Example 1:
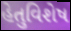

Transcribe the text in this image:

હેતુવિશેષ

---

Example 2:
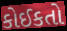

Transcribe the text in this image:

કોઈકતો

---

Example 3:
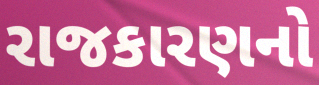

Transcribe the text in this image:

રાજકારણનો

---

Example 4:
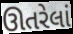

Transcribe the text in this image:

ઊતરેલાં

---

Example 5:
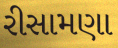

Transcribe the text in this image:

રીસામણા